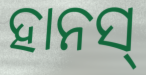
ହାନସ୍